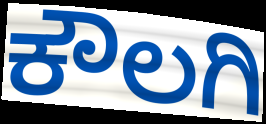
ಕೌಲಗಿ